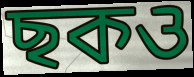
ছকও